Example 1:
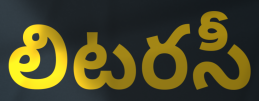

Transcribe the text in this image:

లిటరసీ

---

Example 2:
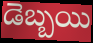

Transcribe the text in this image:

డెబ్బయి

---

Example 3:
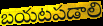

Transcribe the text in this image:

బయటపడాలి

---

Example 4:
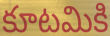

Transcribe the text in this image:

కూటమికి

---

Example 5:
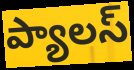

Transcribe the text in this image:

ప్యాలస్